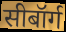
सीबॉर्ग